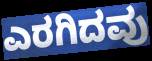
ಎರಗಿದವು